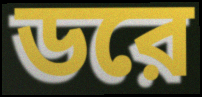
ডরে